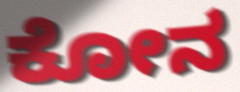
ಕೋನ